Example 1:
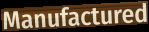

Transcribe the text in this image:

Manufactured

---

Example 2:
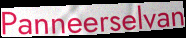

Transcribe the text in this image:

Panneerselvan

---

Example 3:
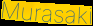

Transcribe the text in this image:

Murasaki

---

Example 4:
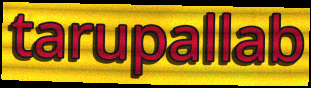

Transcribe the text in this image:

tarupallab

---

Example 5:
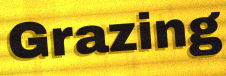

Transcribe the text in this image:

Grazing